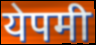
येपमी